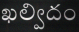
ఖల్విదం